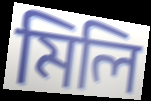
মিলি